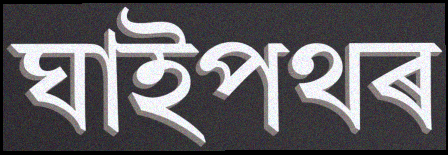
ঘাইপথৰ